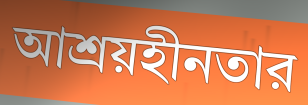
আশ্রয়হীনতার